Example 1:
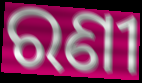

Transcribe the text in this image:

ରଣୀ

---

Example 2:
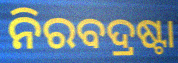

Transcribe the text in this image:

ନିରବଦ୍ରଷ୍ଟା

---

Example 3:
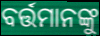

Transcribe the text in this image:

ବର୍ତ୍ତମାନଙ୍କୁ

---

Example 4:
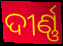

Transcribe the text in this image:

ଦୀର୍ଣ୍ଣ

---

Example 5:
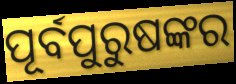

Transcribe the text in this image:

ପୂର୍ବପୁରୁଷଙ୍କର